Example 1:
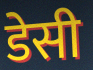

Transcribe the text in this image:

डेसी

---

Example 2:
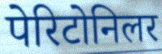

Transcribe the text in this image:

पेरिटोनिलर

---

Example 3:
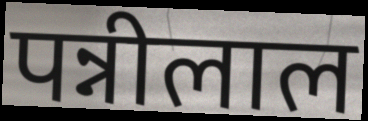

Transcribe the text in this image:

पन्नीलाल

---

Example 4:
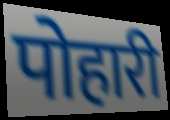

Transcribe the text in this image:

पोहारी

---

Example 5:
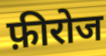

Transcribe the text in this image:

फ़ीरोज